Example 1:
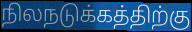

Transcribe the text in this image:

நிலநடுக்கத்திற்கு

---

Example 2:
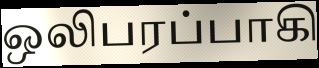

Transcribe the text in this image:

ஒலிபரப்பாகி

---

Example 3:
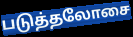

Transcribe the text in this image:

படுத்தலோசை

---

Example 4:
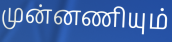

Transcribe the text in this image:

முன்னணியும்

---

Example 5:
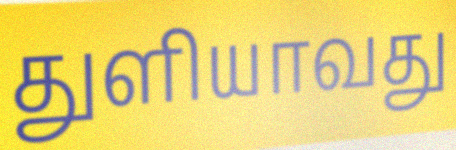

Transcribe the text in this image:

துளியாவது